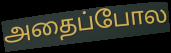
அதைப்போல